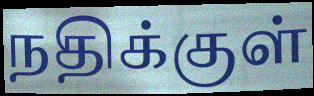
நதிக்குள்